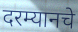
दरम्यानचे